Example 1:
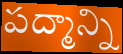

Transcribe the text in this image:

పద్మాన్ని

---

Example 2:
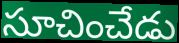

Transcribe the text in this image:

సూచించేడు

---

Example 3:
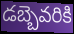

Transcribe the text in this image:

డబ్బెవరికి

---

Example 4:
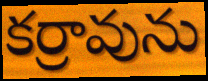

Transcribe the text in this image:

కర్రావును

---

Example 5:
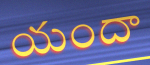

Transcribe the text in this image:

యందా